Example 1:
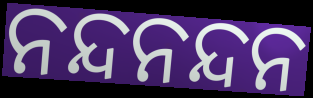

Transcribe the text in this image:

ନନ୍ଦନନ୍ଦନ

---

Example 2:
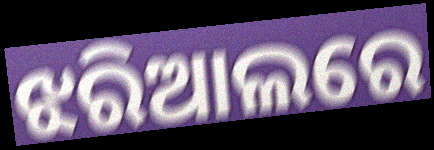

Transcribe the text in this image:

ଝରିଆଲରେ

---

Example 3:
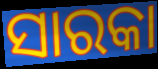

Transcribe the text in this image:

ସାରକା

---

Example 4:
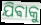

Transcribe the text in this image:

ଯିଵାକୁ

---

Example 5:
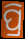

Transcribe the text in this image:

ପ୍ରି